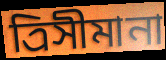
ত্রিসীমানা